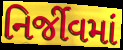
નિર્જીવમાં